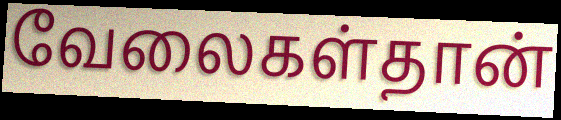
வேலைகள்தான்